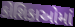
કોશિકાઓમાં